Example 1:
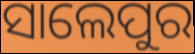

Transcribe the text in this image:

ସାଲେପୁର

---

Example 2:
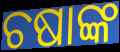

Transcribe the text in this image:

ଚଷାଙ୍କ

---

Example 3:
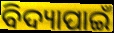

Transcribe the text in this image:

ବିଦ୍ୟାପାଇଁ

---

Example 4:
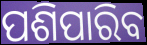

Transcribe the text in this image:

ପଶିପାରିବ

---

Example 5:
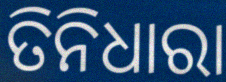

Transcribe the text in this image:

ତିନିଧାରା